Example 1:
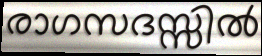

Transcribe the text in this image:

രാഗസദസ്സിൽ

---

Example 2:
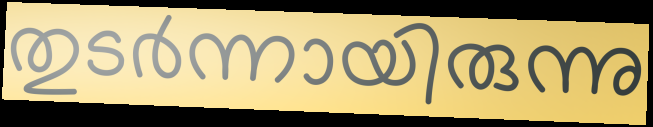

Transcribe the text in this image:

തുടർന്നായിരുന്നു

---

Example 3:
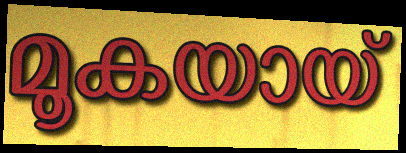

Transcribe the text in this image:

മൂകയായ്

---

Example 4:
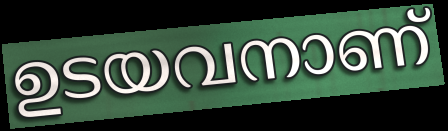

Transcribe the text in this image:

ഉടയവനാണ്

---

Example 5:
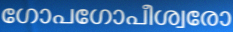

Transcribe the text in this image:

ഗോപഗോപീശ്വരോ